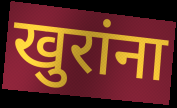
खुरांना